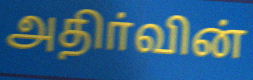
அதிர்வின்